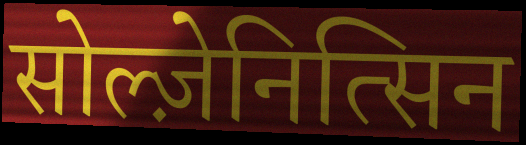
सोल्ज़ेनित्सिन